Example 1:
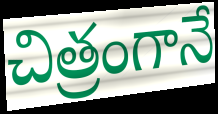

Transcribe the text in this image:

చిత్రంగానే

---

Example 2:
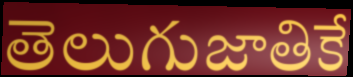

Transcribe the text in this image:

తెలుగుజాతికే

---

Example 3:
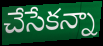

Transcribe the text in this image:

చేసేకన్నా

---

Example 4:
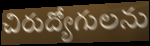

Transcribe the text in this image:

చిరుద్యోగులను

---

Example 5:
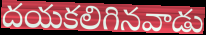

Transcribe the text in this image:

దయకలిగినవాడు